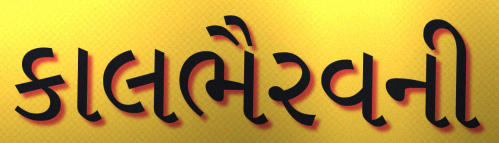
કાલભૈરવની